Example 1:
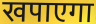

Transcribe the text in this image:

खपाएगा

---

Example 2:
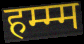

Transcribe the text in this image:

हम्म्म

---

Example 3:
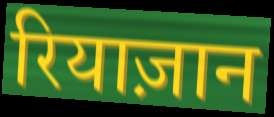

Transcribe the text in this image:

रियाज़ान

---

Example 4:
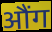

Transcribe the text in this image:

औंग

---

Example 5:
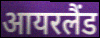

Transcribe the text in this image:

आयरलैंड